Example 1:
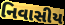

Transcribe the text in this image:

નિવાસીય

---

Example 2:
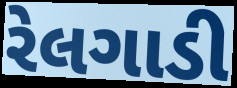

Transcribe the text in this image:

રેલગાડી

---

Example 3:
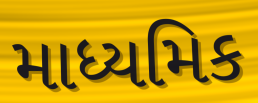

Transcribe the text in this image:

માધ્યમિક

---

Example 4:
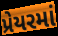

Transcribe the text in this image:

પ્રેયરમાં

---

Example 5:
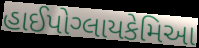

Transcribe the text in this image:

હાઈપોગ્લાયકેમિઆ